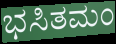
ಭಸಿತಮಂ